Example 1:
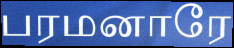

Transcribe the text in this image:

பரமனாரே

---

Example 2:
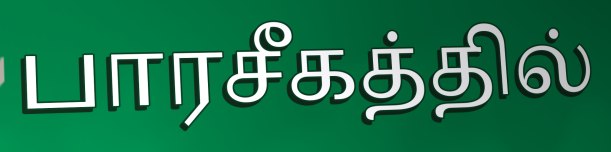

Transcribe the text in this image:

பாரசீகத்தில்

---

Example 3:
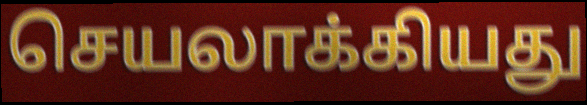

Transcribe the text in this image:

செயலாக்கியது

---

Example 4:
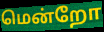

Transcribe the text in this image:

மென்றோ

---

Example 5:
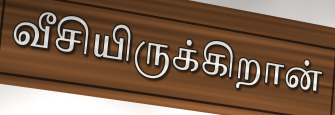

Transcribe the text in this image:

வீசியிருக்கிறான்